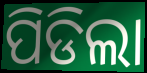
ପିଡିଲା